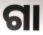
ଗା